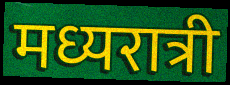
मध्यरात्री